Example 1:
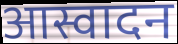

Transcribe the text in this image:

आस्वादन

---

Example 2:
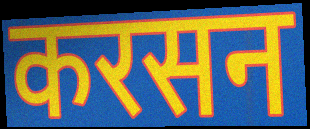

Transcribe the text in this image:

करसन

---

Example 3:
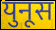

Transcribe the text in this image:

युनूस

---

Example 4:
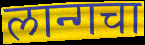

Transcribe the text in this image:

लान्गचा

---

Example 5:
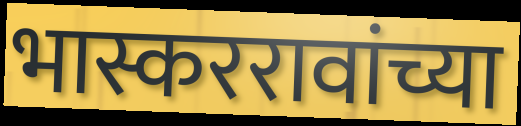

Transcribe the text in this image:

भास्कररावांच्या